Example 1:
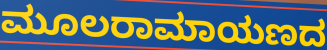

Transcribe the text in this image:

ಮೂಲರಾಮಾಯಣದ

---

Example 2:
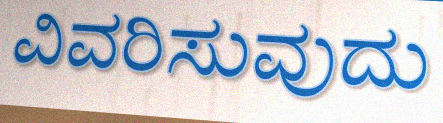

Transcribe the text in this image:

ವಿವರಿಸುವುದು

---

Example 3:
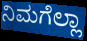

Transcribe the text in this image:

ನಿಮಗೆಲ್ಲಾ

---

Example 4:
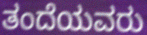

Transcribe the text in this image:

ತಂದೆಯವರು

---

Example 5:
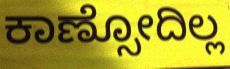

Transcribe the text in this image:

ಕಾಣ್ಸೋದಿಲ್ಲ